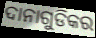
ଦାନାଗୁଡିକର